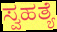
ಸ್ವಹತ್ಯೆ